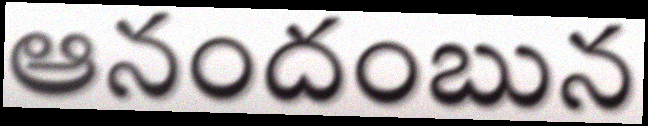
ఆనందంబున